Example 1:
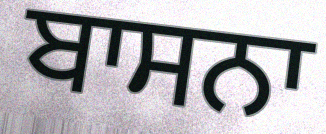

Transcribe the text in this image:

ਬਾਸਨਾ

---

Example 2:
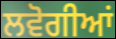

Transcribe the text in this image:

ਲਵੋਗੀਆਂ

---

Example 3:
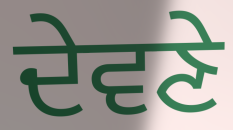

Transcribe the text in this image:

ਦੇਵਣੇ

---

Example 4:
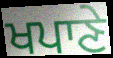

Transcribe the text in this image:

ਖਪਾਣੇ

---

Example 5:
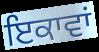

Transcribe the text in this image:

ਇਕਾਵਾਂ